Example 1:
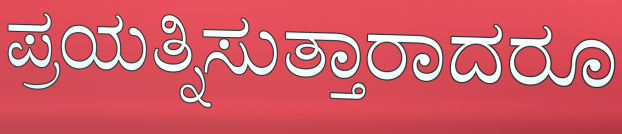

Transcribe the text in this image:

ಪ್ರಯತ್ನಿಸುತ್ತಾರಾದರೂ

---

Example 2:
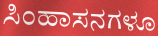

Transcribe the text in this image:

ಸಿಂಹಾಸನಗಳೂ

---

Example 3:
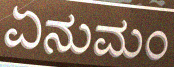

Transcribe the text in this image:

ಏನುಮಂ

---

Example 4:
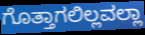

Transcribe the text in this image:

ಗೊತ್ತಾಗಲಿಲ್ಲವಲ್ಲಾ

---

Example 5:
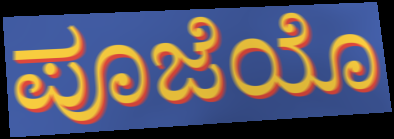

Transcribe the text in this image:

ಪೂಜೆಯೊ